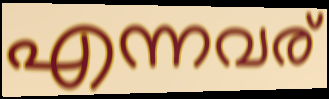
എന്നവര്